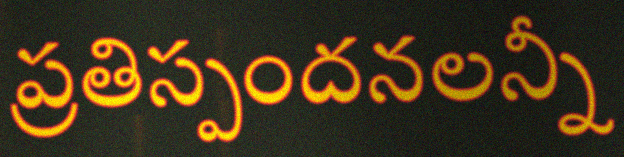
ప్రతిస్పందనలన్నీ